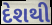
દેશથી